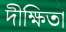
দীক্ষিতা